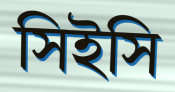
সিইসি